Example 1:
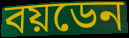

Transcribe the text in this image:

বয়ডেন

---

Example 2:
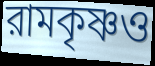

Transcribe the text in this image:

রামকৃষ্ণও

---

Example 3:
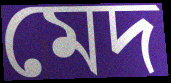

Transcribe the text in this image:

মেদ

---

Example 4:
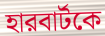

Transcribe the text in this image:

হারবার্টকে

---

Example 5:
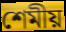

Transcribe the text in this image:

শেমীয়